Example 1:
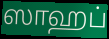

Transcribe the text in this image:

ஸாஹப்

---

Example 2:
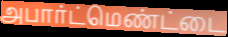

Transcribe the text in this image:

அபார்ட்மெண்ட்டை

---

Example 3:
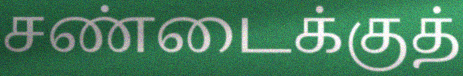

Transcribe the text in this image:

சண்டைக்குத்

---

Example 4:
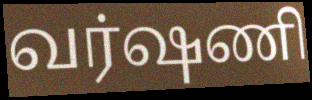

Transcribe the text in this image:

வர்ஷணி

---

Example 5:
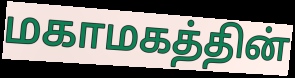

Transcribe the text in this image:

மகாமகத்தின்